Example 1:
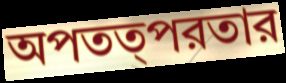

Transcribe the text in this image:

অপতত্পরতার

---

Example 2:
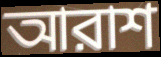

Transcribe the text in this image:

আরাশ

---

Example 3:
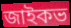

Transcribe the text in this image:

জাইকভ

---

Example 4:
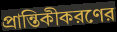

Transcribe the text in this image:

প্রান্তিকীকরণের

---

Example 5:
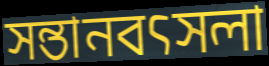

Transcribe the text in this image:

সন্তানবৎসলা